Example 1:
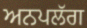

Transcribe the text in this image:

ਅਨਪਲੱਗ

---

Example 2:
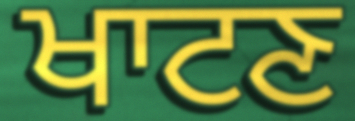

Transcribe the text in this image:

ਖਾਟਣ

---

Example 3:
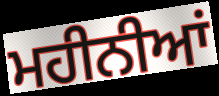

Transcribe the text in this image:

ਮਹੀਨੀਆਂ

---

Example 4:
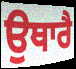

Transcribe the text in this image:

ਉਥਾਰੈ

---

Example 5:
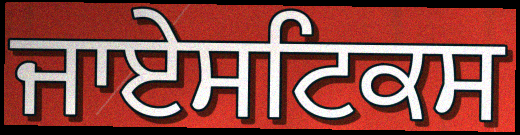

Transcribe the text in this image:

ਜਾਏਸਟਿਕਸ